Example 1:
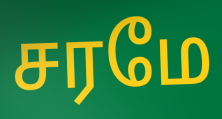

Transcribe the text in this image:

சரமே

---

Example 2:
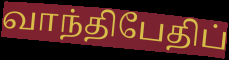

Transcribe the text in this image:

வாந்திபேதிப்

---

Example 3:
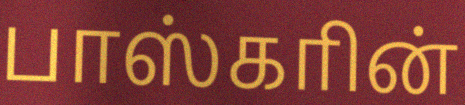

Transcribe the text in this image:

பாஸ்கரின்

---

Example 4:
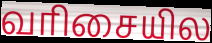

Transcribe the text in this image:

வரிசையில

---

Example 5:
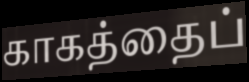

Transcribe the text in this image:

காகத்தைப்